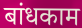
बांधकाम